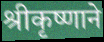
श्रीकृष्णाने